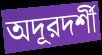
অদূরদর্শী